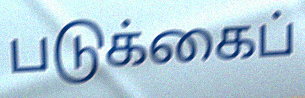
படுக்கைப்